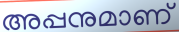
അപ്പനുമാണ്